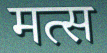
मत्स